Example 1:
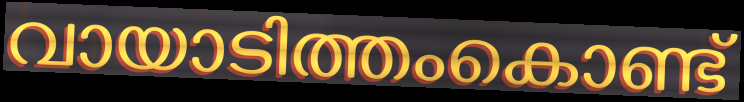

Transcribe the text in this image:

വായാടിത്തംകൊണ്ട്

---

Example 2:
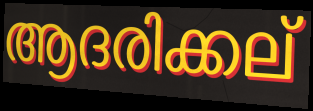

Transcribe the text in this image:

ആദരിക്കല്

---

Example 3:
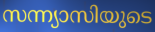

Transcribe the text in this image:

സന്ന്യാസിയുടെ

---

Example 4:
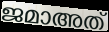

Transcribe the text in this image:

ജമാഅത്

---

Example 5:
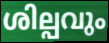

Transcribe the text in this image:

ശില്പവും